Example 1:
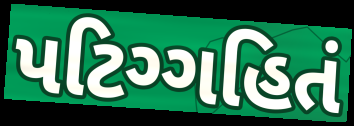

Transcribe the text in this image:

પટિગ્ગહિતં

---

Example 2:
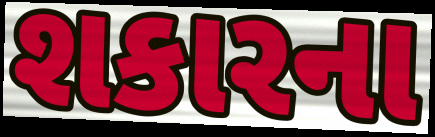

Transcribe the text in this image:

શકારના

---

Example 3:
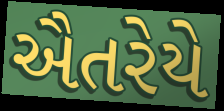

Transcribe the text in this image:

ઐતરેયે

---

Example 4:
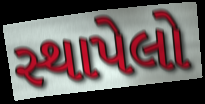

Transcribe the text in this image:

સ્થાપેલો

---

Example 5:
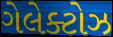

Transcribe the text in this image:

ગેલેક્ટોઝ